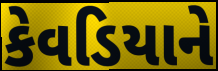
કેવડિયાને